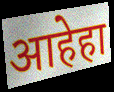
आहेहा